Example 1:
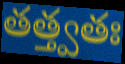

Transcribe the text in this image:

తత్త్వతః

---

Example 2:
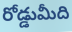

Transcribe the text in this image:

రోడ్డుమీది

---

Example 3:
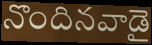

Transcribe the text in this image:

నొందినవాడై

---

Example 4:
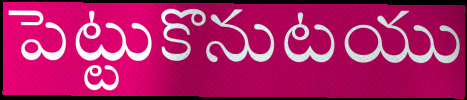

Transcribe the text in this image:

పెట్టుకొనుటయు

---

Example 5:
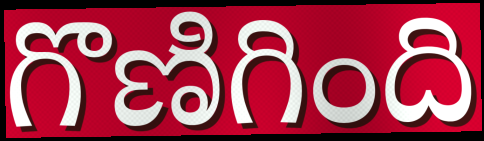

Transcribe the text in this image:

గొణిగింది